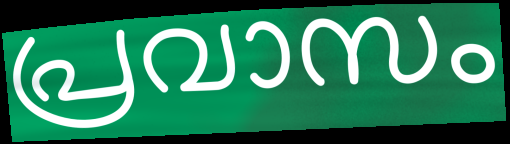
പ്രവാസം